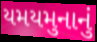
યમયમુનાનું